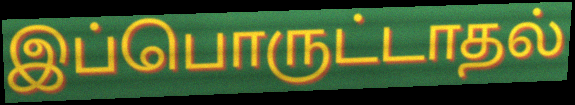
இப்பொருட்டாதல்